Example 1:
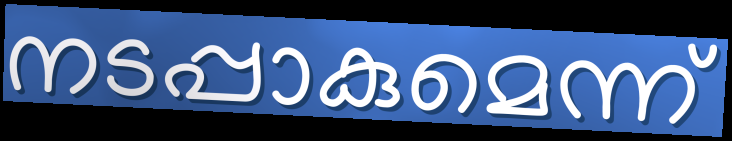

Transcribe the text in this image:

നടപ്പാകുമെന്ന്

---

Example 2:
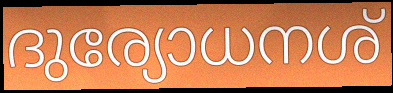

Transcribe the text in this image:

ദുര്യോധനശ്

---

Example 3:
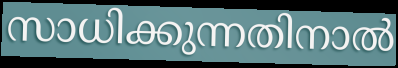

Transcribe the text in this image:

സാധിക്കുന്നതിനാൽ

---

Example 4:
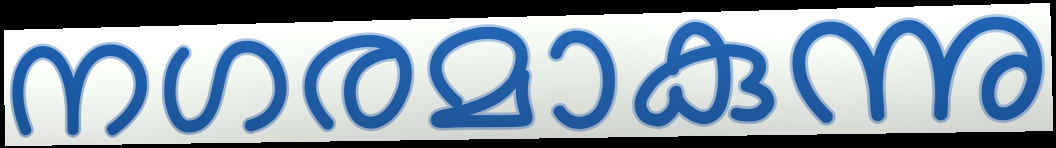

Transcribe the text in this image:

നഗരമാകുന്നു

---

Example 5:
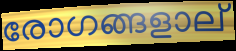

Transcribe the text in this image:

രോഗങ്ങളാല്